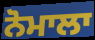
ਨੋਮਾਲਾ